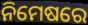
ନିମେଷରେ